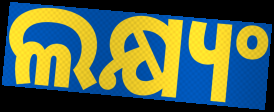
ଲକ୍ଷ୍ୟଂ